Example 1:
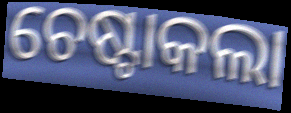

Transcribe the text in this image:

ଚେଷ୍ଟାକଲା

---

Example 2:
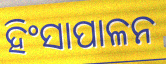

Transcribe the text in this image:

ହିଂସାପାଳନ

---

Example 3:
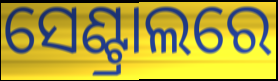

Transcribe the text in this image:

ସେଣ୍ଟ୍ରାଲରେ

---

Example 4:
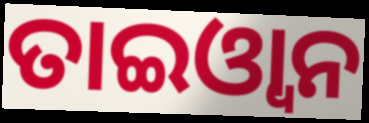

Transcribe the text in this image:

ତାଇଓ୍ୱାନ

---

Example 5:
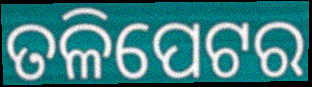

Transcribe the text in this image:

ତଳିପେଟର